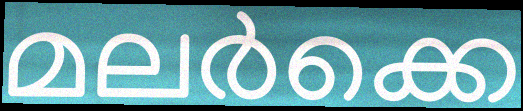
മലർക്കെ